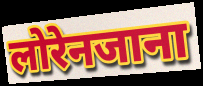
लोरेनजाना